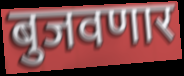
बुजवणार